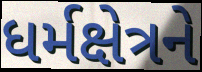
ધર્મક્ષેત્રને